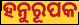
ହନୁରୂପକ